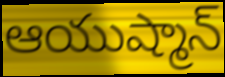
ఆయుష్మాన్